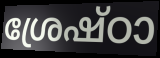
ശ്രേഷ്ഠാ